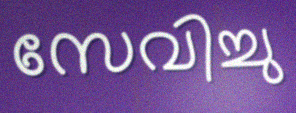
സേവിച്ചു